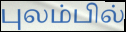
புலம்பில்